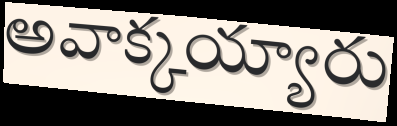
అవాక్కయ్యారు